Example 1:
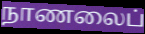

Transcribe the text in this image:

நாணலைப்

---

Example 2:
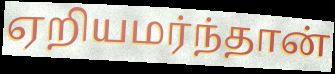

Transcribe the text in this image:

ஏறியமர்ந்தான்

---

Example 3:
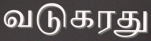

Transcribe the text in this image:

வடுகரது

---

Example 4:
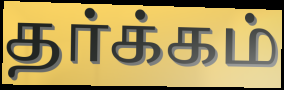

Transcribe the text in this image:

தர்க்கம்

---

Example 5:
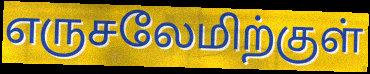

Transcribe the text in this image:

எருசலேமிற்குள்